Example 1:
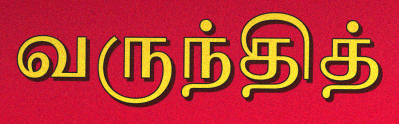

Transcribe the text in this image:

வருந்தித்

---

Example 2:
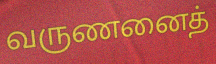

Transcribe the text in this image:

வருணனைத்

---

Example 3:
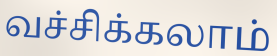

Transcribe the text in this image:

வச்சிக்கலாம்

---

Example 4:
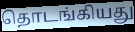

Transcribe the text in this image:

தொடங்கியது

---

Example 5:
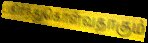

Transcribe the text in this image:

பகிர்ந்துகொள்வதாகும்